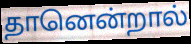
தானென்றால்